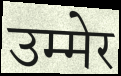
उम्मेर